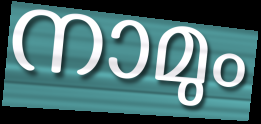
നാമും